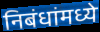
निबंधांमध्ये